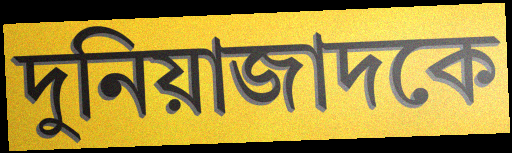
দুনিয়াজাদকে